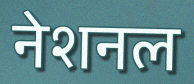
नेशनल